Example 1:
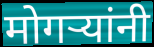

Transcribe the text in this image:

मोगऱ्यांनी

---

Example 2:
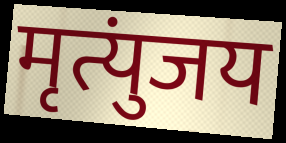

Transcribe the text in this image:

मृत्युंजय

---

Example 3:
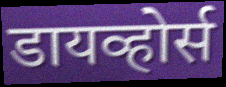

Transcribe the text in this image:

डायव्होर्स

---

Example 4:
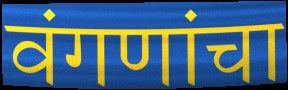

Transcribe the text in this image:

वंगणांचा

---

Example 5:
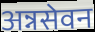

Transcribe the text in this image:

अन्नसेवन